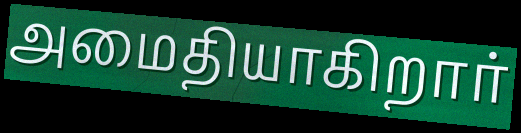
அமைதியாகிறார்